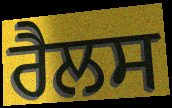
ਰੈਲਸ